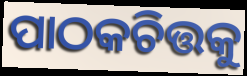
ପାଠକଚିତ୍ତକୁ